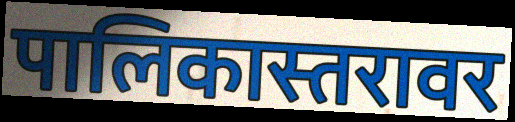
पालिकास्तरावर